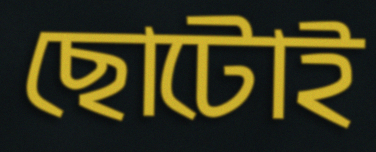
ছোটোই